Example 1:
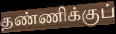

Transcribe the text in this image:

தண்ணிக்குப்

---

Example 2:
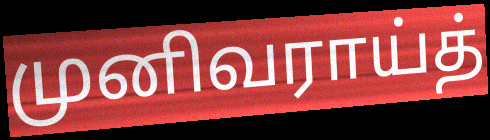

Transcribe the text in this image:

முனிவராய்த்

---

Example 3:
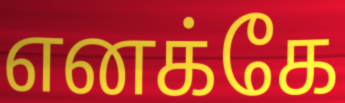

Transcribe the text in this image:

எனக்கே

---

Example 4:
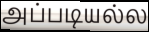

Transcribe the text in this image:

அப்படியல்ல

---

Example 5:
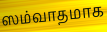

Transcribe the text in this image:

ஸம்வாதமாக